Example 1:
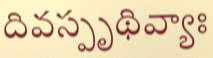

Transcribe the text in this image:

దివస్పృథివ్యాః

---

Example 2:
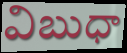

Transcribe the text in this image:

విబుధా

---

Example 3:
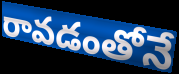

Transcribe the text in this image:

రావడంతోనే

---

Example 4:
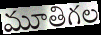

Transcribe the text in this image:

మూతిగల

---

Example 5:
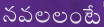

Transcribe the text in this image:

నవలలంటే